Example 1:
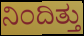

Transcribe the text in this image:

ನಿಂದಿತ್ತು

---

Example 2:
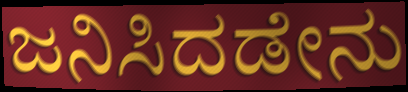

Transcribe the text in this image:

ಜನಿಸಿದಡೇನು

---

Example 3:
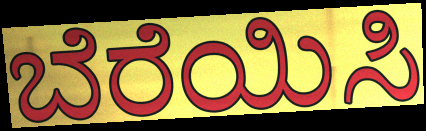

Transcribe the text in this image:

ಬೆರೆಯಿಸಿ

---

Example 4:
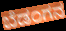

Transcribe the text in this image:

ಬೆಡಂಗನ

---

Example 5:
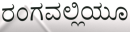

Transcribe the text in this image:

ರಂಗವಲ್ಲಿಯೂ